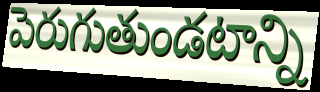
పెరుగుతుండటాన్ని